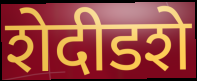
शेदीडशे